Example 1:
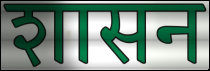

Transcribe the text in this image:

शासन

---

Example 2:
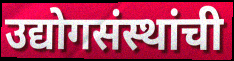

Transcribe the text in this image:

उद्योगसंस्थांची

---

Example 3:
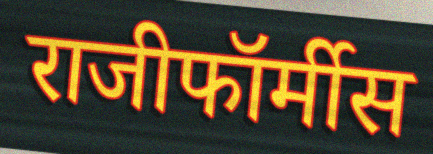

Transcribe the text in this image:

राजीफॉर्मीस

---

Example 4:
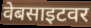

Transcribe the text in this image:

वेबसाइटवर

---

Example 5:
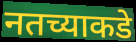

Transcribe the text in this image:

नतच्याकडे